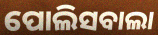
ପୋଲିସବାଲା